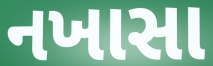
નખાસા